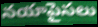
నయాపైసలు